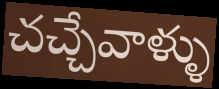
చచ్చేవాళ్ళు